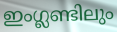
ഇംഗ്ലണ്ടിലും